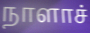
நாளாச்